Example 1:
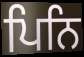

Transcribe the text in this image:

ਪਿਨਿ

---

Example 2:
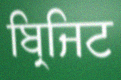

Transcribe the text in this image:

ਬ੍ਰਿਜਿਟ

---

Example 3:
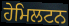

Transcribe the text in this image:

ਹੇਮਿਲਟਨ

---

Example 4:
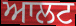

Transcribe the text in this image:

ਆਲਟ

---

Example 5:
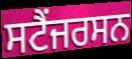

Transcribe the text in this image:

ਸਟੈਂਜਰਸਨ